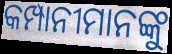
କମ୍ପାନୀମାନଙ୍କୁ